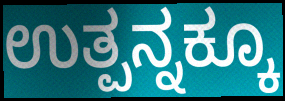
ಉತ್ಪನ್ನಕ್ಕೂ